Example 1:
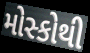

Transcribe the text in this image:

મોસ્કોથી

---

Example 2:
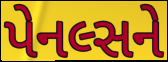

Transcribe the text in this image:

પેનલ્સને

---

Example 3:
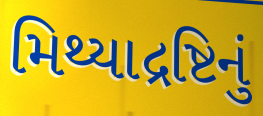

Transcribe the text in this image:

મિથ્યાદ્રષ્ટિનું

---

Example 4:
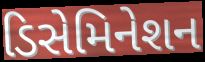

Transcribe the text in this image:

ડિસેમિનેશન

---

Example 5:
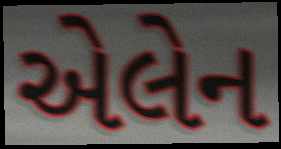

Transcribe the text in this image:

એલેન